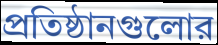
প্রতিষ্ঠানগুলোর